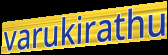
varukirathu